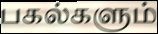
பகல்களும்